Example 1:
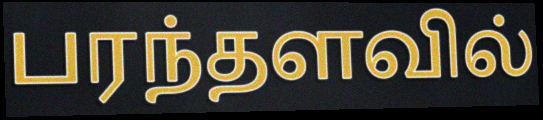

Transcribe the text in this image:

பரந்தளவில்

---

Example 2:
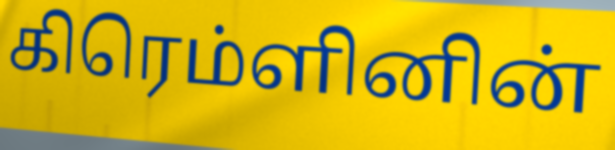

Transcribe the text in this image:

கிரெம்ளினின்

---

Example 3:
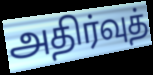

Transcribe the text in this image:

அதிர்வுத்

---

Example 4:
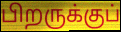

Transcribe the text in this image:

பிறருக்குப்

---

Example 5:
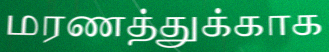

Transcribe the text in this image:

மரணத்துக்காக